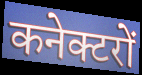
कनेक्टरों